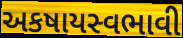
અકષાયસ્વભાવી